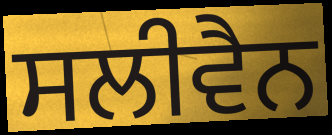
ਸਲੀਵੈਨ